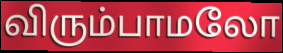
விரும்பாமலோ